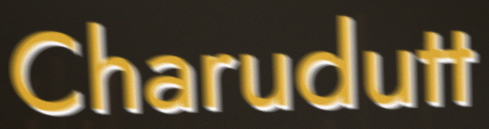
Charudutt